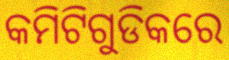
କମିଟିଗୁଡିକରେ